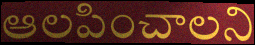
ఆలపించాలని